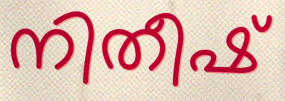
നിതീഷ്